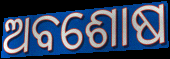
ଅବଶୋଷ